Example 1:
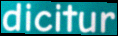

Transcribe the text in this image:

dicitur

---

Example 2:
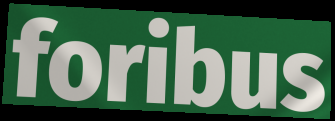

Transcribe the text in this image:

foribus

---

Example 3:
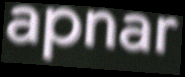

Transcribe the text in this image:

apnar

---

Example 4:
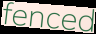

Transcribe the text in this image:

fenced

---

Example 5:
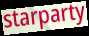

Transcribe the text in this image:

starparty